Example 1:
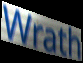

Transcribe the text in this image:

Wrath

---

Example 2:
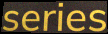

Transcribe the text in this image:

series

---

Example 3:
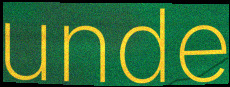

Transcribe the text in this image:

unde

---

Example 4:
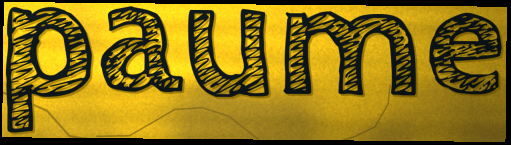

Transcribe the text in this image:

paume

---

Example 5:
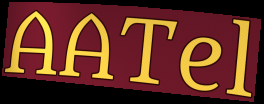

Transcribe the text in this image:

AATel